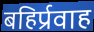
बहिर्प्रवाह